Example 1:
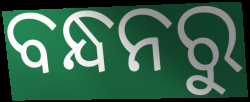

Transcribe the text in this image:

ବନ୍ଧନରୁ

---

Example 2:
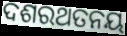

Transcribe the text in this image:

ଦଶରଥତନୟ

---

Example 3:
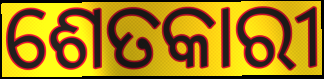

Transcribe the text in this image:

ଶେତକାରୀ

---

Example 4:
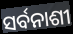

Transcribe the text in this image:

ସର୍ବନାଶୀ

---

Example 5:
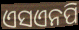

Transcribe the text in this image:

ଏସଏନପି